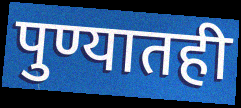
पुण्यातही